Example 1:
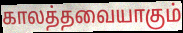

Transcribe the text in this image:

காலத்தவையாகும்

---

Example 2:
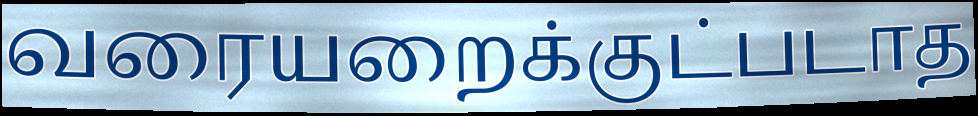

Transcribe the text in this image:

வரையறைக்குட்படாத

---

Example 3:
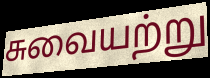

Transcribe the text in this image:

சுவையற்று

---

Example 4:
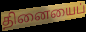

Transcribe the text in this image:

தினையைப்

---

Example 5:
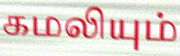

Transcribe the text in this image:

கமலியும்